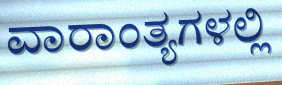
ವಾರಾಂತ್ಯಗಳಲ್ಲಿ